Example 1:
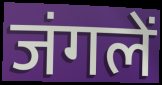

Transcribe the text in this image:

जंगलें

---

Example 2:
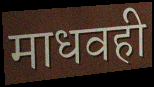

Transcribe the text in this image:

माधवही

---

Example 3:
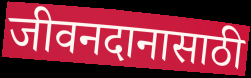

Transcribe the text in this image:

जीवनदानासाठी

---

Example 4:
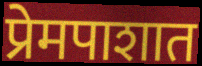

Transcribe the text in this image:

प्रेमपाशात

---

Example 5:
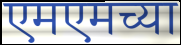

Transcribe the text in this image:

एमएमच्या